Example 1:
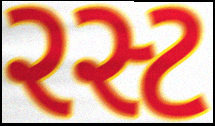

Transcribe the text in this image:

રસ્ટ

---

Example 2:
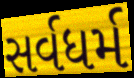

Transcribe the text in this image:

સર્વધર્મ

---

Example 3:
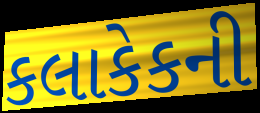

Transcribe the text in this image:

કલાકેકની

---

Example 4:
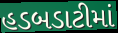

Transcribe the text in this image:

હડબડાટીમાં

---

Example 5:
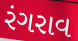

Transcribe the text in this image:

રંગરાવ